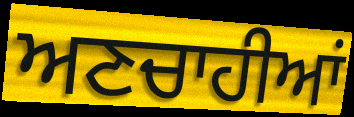
ਅਣਚਾਹੀਆਂ